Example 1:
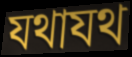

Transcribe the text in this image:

যথাযথ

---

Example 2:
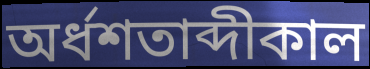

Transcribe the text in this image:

অর্ধশতাব্দীকাল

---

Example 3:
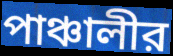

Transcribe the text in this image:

পাঞ্চালীর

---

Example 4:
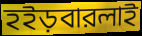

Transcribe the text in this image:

হইড়বারলাই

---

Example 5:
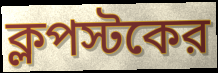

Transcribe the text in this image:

ক্লপস্টকের